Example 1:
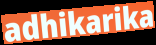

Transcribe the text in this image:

adhikarika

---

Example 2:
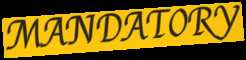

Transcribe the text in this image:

MANDATORY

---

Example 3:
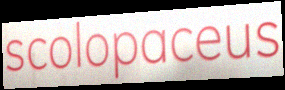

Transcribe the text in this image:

scolopaceus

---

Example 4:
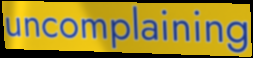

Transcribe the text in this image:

uncomplaining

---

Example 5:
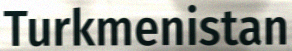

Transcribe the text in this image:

Turkmenistan